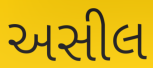
અસીલ